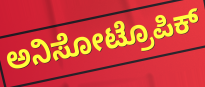
ಅನಿಸೋಟ್ರೊಪಿಕ್